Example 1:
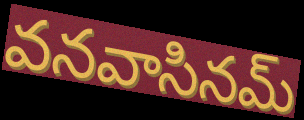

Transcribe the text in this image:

వనవాసినమ్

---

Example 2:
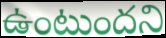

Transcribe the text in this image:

ఉంటుందని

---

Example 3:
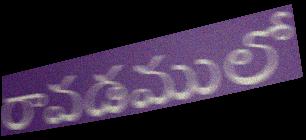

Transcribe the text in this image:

రావడములో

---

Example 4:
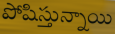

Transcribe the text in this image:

పోషిస్తున్నాయి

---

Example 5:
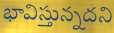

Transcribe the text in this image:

భావిస్తున్నదని